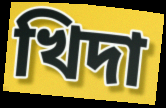
খিদা